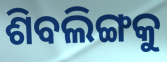
ଶିବଲିଙ୍ଗକୁ